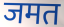
जमत